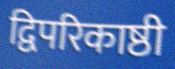
द्विपरिकाष्ठी